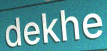
dekhe